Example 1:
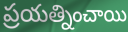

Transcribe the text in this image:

ప్రయత్నించాయి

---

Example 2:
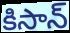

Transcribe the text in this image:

కిసాన్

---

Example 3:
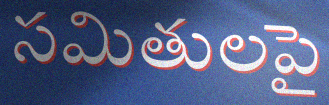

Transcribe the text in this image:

సమితులపై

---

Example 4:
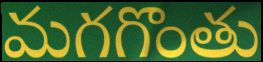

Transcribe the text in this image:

మగగొంతు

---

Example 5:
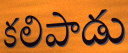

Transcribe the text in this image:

కలిపాడు